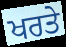
ਖਰਤੇ